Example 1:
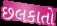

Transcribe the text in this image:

છલકાતો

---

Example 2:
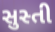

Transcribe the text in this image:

સુસ્તી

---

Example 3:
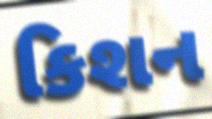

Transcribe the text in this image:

કિશન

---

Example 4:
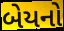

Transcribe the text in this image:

બેયનો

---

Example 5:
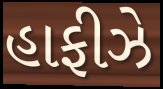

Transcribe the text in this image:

હાફીઝે